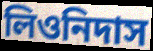
লিওনিদাস